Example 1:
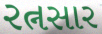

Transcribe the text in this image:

રત્નસાર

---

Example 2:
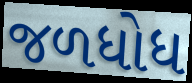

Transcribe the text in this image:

જળધોધ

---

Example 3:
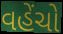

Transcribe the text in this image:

વહેંચો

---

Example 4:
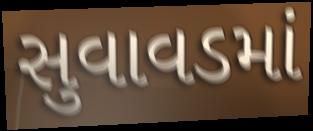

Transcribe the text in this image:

સુવાવડમાં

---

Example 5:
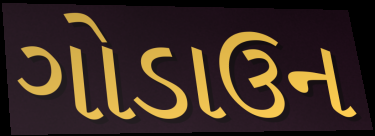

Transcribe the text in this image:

ગોડાઉન